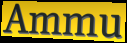
Ammu